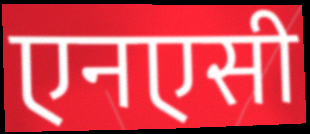
एनएसी